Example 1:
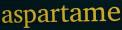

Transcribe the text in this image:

aspartame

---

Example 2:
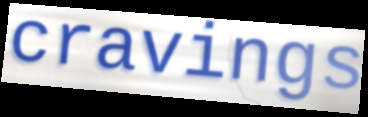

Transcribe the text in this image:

cravings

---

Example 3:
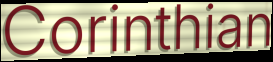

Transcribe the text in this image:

Corinthian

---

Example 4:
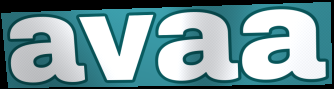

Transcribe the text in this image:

avaa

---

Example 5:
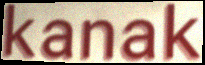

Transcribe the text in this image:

kanak